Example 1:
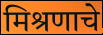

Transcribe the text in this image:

मिश्रणाचे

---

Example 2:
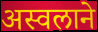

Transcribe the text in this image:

अस्वलाने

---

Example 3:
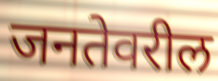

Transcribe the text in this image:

जनतेवरील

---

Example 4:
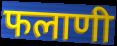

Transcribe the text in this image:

फलाणी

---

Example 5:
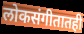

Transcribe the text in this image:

लोकसंगीतातही